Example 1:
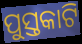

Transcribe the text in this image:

ପୁସ୍ତକାଟି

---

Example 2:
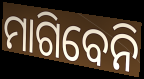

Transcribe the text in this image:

ମାଗିବେନି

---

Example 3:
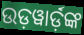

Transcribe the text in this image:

ଉଡ଼ୱାର୍ଡ଼ଙ୍କ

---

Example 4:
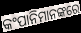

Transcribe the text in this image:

କଂପାନିମାନଙ୍କରେ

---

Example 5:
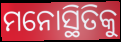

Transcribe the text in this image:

ମନୋସ୍ଥିତିକୁ